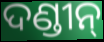
ଦଣ୍ଡୀନ୍